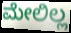
ಮೇಲಿಲ್ಲ